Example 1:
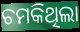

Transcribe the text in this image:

ଚମକିଥିଲା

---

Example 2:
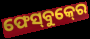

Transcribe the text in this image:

ଫେସ୍‍ବୁକ୍‍ରେ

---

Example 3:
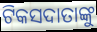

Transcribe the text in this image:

ଟିକସଦାତାଙ୍କୁ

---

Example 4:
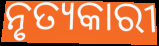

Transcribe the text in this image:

ନୃତ୍ୟକାରୀ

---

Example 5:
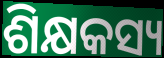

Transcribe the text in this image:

ଶିକ୍ଷକସ୍ୟ